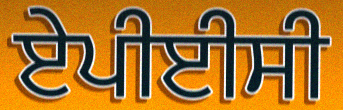
ਏਪੀਈਸੀ